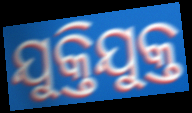
ଯୁକ୍ତିଯୁକ୍ତ